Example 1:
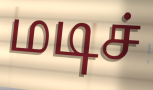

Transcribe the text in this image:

மடிச்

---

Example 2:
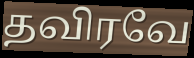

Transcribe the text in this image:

தவிரவே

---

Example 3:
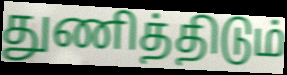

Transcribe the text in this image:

துணித்திடும்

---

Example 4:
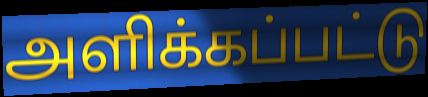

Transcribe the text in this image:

அளிக்கப்பட்டு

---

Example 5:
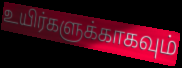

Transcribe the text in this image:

உயிர்களுக்காகவும்